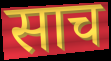
साच